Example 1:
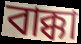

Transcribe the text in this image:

বাক্কা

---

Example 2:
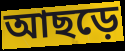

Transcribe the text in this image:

আছড়ে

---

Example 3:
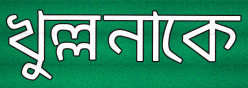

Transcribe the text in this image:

খুল্লনাকে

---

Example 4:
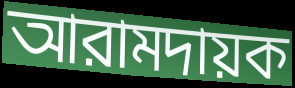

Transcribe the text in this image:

আরামদায়ক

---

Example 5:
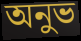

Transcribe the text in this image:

অনুভ